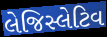
લેજિસ્લેટિવ